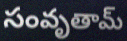
సంవృతామ్